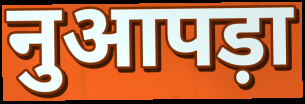
नुआपड़ा